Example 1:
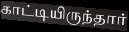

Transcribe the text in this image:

காட்டியிருந்தார்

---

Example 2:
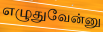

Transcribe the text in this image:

எழுதுவேன்னு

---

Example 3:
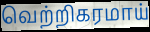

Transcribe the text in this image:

வெற்றிகரமாய்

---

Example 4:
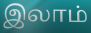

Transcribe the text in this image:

இலாம்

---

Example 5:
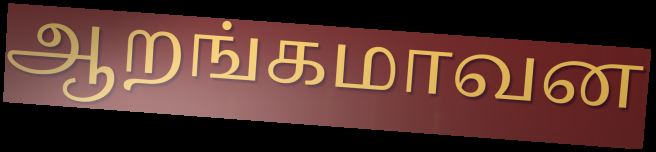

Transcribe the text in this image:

ஆறங்கமாவன